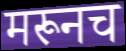
मरूनच